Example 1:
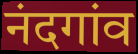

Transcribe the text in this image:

नंदगांव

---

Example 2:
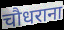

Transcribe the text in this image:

चौधराना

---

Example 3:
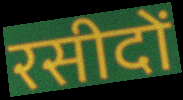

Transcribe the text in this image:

रसीदों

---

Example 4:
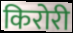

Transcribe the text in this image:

किरोरी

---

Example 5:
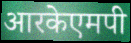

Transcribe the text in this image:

आरकेएमपी